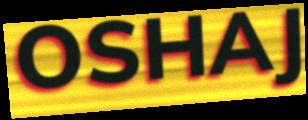
OSHAJ